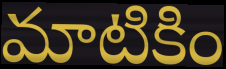
మాటికిం